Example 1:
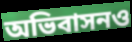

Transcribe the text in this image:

অভিবাসনও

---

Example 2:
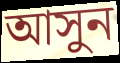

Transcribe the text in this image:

আসুন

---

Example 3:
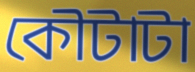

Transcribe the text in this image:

কৌটাটা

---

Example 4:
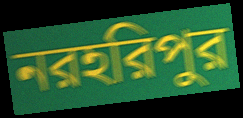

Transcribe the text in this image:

নরহরিপুর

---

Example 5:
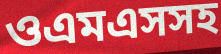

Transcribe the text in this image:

ওএমএসসহ